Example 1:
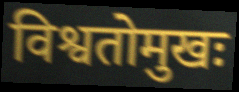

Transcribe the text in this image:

विश्वतोमुखः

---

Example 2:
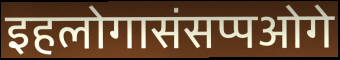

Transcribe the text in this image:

इहलोगासंसप्पओगे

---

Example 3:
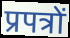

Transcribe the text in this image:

प्रपत्रों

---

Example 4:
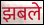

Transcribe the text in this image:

झबले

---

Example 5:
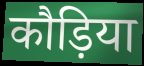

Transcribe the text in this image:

कौड़िया